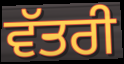
ਵੱਤਰੀ